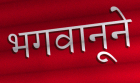
भगवानूने